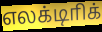
எலக்டிரிக்